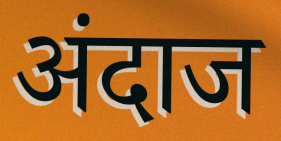
अंदाज